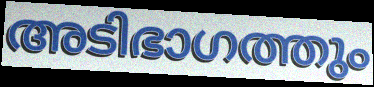
അടിഭാഗത്തും